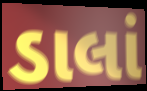
ડાલાં